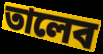
তালেব